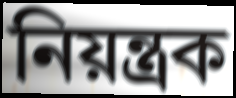
নিয়ন্ত্ৰক